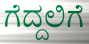
ಗೆದ್ದಲಿಗೆ